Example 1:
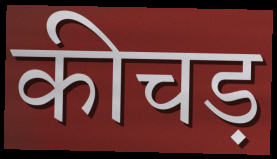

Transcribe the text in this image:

कीचड़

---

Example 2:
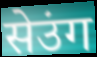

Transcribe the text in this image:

सेउंग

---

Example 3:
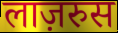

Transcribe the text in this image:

लाज़रुस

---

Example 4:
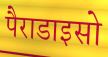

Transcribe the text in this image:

पैराडाइसो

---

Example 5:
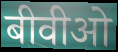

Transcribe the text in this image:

बीवीओ